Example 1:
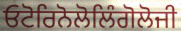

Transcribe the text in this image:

ਓਟੋਰਿਨੋਲੋਲਿੰਗੋਲੋਜੀ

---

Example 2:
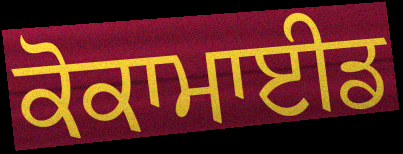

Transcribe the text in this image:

ਕੋਕਾਮਾਈਡ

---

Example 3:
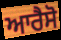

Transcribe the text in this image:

ਆਰੈਸੋ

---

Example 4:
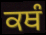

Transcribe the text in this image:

ਕਥੰ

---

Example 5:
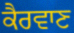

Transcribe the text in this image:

ਕੈਰਵਾਣ